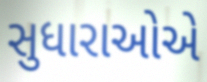
સુધારાઓએ